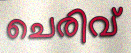
ചെരിവ്